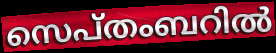
സെപ്തംബറിൽ